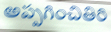
అప్పగించితిరి